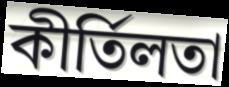
কীৰ্তিলতা